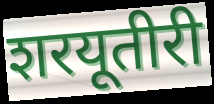
शरयूतीरी